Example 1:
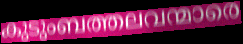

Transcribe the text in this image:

കുടുംബത്തലവന്മാരെ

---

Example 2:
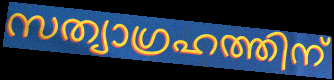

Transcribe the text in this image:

സത്യാഗ്രഹത്തിന്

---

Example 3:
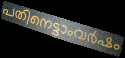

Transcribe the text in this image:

പതിനെട്ടാംവർഷം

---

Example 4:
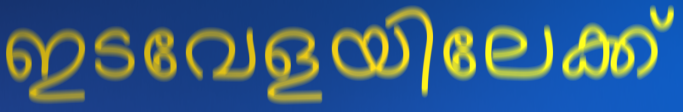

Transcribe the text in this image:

ഇടവേളയിലേക്ക്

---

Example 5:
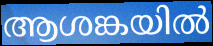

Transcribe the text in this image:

ആശങ്കയിൽ